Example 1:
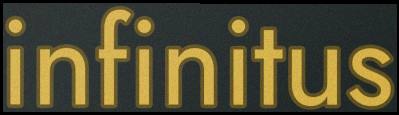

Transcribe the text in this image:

infinitus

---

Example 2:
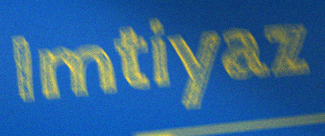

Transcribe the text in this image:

Imtiyaz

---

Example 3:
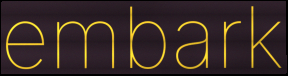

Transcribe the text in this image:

embark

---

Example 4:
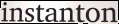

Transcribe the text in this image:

instanton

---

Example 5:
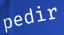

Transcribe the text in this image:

pedir